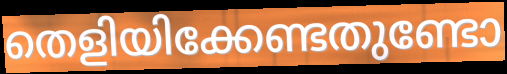
തെളിയിക്കേണ്ടതുണ്ടോ